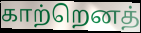
காற்றெனத்